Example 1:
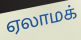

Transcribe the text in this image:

ஏலாமக்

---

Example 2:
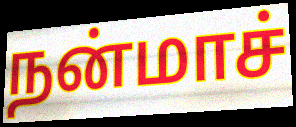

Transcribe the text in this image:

நன்மாச்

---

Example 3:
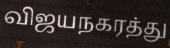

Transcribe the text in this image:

விஜயநகரத்து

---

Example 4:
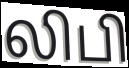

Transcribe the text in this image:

லிபி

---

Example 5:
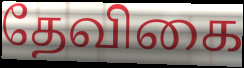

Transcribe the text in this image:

தேவிகை